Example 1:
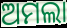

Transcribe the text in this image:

ଅମଲା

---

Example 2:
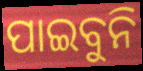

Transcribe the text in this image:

ପାଇବୁନି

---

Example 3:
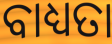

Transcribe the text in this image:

ବାଧ୍ୟତା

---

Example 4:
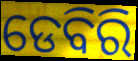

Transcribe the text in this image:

ଡେବିରି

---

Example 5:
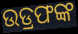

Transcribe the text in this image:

ଉଡ୍ରଫଙ୍କ